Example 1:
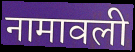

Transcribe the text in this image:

नामावली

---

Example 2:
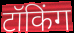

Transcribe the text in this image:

टॉकिंग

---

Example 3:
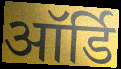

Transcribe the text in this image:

ऑर्डि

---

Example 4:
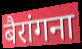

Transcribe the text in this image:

बैरांगना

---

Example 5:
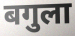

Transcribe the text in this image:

बगुला